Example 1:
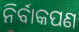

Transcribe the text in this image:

ନିର୍ବାକପଣ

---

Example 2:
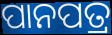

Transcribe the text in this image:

ପାନପତ୍ର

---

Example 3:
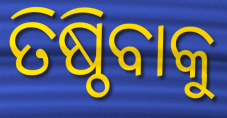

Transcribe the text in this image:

ତିଷ୍ଠିବାକୁ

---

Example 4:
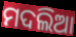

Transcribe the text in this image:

ମଦଲିଆ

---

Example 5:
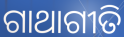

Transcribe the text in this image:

ଗାଥାଗୀତି